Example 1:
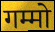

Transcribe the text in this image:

गम्मो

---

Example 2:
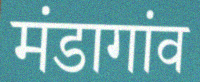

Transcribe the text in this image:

मंडागांव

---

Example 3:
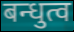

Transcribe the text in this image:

बन्धुत्व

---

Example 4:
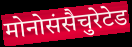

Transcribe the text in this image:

मोनोसंसैचुरेटेड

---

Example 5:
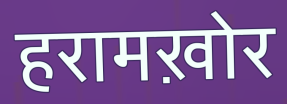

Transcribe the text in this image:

हरामख़ोर